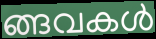
ങ്ങവകൾ